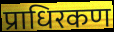
प्राधिरकण